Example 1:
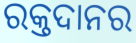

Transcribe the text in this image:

ରକ୍ତଦାନର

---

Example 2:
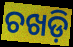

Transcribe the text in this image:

ଚଖଡ଼ି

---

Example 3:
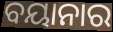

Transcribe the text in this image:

ବୟାନାର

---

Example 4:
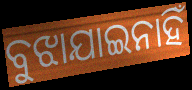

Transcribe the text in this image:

ବୁଝାଯାଇନାହିଁ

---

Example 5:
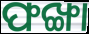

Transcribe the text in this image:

ଫଙ୍ଖା